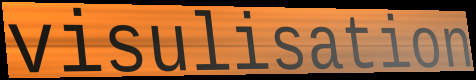
visulisation